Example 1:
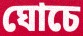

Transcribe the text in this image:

ঘোচে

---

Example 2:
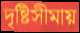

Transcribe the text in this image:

দৃষ্টিসীমায়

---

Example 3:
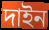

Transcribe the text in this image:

দাইন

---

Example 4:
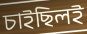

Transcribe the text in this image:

চাইছিলই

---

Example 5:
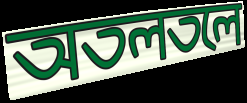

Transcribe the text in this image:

অতলতলে